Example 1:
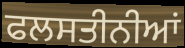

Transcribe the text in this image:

ਫਲਸਤੀਨੀਆਂ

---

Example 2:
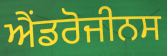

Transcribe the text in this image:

ਐਂਡਰੋਜੀਨਸ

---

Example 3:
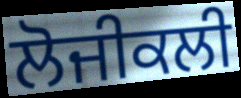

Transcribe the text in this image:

ਲੋਜੀਕਲੀ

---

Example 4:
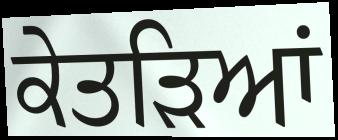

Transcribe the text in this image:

ਕੇਤੜਿਆਂ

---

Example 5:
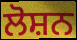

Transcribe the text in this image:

ਲੋਸ਼ਨ